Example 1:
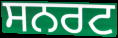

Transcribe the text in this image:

ਸਨਰਟ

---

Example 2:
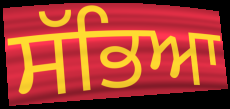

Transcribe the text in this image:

ਸੱਭਿਆ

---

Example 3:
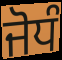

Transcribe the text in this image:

ਜੋਧੰ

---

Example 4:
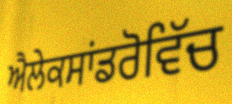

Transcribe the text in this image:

ਐਲੇਕਸਾਂਡਰੋਵਿੱਚ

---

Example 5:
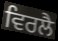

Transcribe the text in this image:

ਵਿਰਲੈ